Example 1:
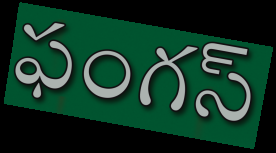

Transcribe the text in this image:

ఫంగస్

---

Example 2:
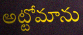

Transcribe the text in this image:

అట్టోమాను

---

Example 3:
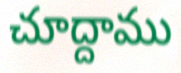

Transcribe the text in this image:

చూద్దాము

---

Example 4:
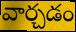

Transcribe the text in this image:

వార్చడం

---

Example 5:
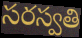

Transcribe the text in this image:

సరస్వతి